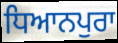
ਧਿਆਨਪੁਰਾ